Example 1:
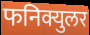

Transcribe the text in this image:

फनिक्युलर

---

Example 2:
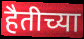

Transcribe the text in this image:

हैतीच्या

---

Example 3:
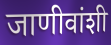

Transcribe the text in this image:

जाणीवांशी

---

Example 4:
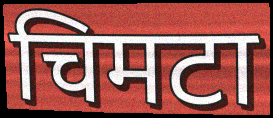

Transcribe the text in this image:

चिमटा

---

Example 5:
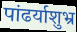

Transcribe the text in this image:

पांढर्याशुभ्र